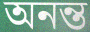
অনন্ত